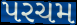
પરચમ